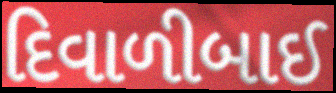
દિવાળીબાઈ